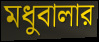
মধুবালার